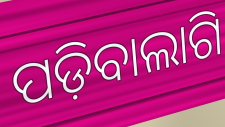
ପଡ଼ିବାଲାଗି